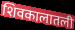
शिवकालातली